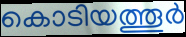
കൊടിയത്തൂർ